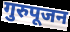
गुरुपूजन